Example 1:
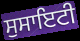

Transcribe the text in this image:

ਸੁਸਾਇਟੀ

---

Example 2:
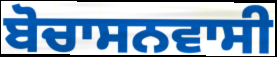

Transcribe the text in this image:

ਬੋਚਾਸਨਵਾਸੀ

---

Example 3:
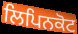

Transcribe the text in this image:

ਲਿਪਿਨਕੋਟ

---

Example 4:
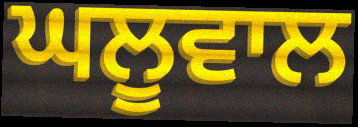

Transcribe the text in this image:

ਘਲੂਵਾਲ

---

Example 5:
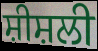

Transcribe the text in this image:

ਸ਼ੀਸ਼ਲੀ